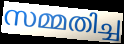
സമ്മതിച്ച